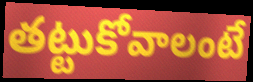
తట్టుకోవాలంటే